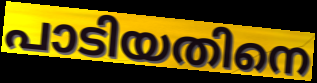
പാടിയതിനെ